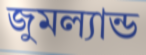
জুমল্যান্ড